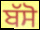
ਬੱਸੋ